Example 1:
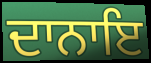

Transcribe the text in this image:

ਦਾਨਾਇ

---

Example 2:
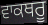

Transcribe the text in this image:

ਵਾਕਥਰੂ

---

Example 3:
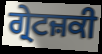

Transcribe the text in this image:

ਗ੍ਰੇਟਜ਼ਕੀ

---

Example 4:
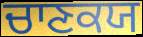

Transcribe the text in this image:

ਚਾਣਕਯ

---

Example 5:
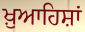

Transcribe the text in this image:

ਖ਼ੁਆਹਿਸ਼ਾਂ